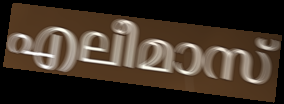
എലീമാസ്